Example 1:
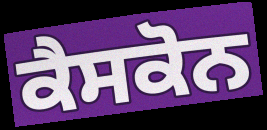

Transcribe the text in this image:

ਕੈਸਕੋਨ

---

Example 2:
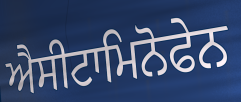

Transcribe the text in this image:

ਐਸੀਟਾਮਿਨੋਫੇਨ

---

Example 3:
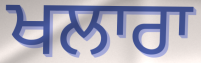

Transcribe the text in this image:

ਖਲਾਰਾ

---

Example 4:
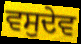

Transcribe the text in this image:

ਵਸੁਦੇਵ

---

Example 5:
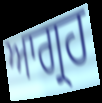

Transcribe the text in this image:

ਆਗ੍ਰਹ